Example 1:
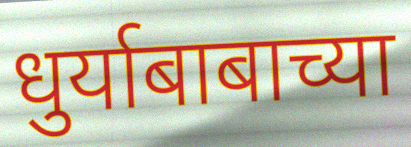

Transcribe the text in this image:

धुर्याबाबाच्या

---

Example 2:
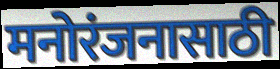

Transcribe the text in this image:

मनोरंजनासाठी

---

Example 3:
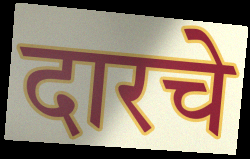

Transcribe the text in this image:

दारचे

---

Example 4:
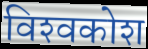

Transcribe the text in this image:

विश्वकोश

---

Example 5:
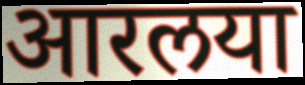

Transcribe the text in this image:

आरलया